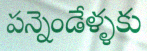
పన్నెండేళ్ళకు